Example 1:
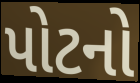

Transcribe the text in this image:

પોટનો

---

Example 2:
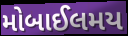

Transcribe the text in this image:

મોબાઈલમય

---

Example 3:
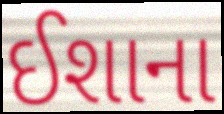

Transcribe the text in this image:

ઈશાના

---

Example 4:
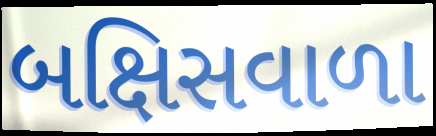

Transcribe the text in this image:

બક્ષિસવાળા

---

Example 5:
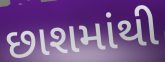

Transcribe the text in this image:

છાશમાંથી